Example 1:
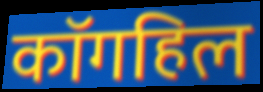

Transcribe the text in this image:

कॉगहिल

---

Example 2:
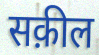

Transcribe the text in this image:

सक़ील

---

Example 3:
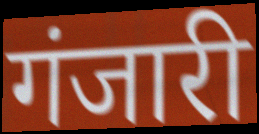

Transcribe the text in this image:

गंजारी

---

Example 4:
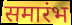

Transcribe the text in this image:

समारंभ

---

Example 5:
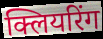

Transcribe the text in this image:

क्लियरिंग